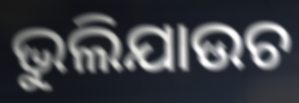
ଭୁଲିଯାଉଚ